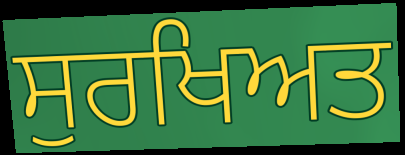
ਸੁਰਖਿਅਤ